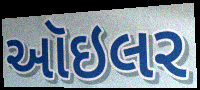
ઑઇલર